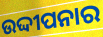
ଉଦ୍ଦୀପନାର